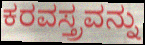
ಕರವಸ್ತ್ರವನ್ನು